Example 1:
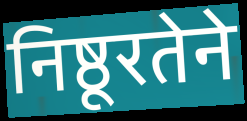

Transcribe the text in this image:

निष्ठूरतेने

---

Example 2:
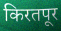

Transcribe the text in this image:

किरतपूर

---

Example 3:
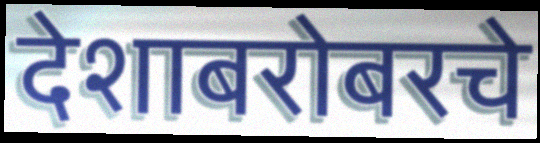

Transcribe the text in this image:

देशाबरोबरचे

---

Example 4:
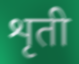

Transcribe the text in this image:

शृती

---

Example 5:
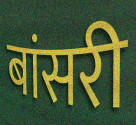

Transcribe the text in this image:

बांसरी